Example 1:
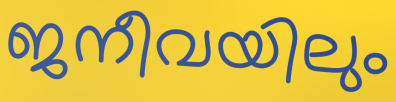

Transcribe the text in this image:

ജനീവയിലും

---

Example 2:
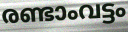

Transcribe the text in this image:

രണ്ടാംവട്ടം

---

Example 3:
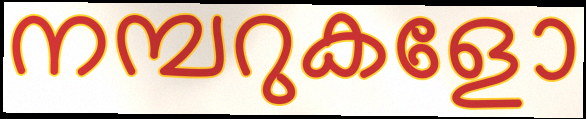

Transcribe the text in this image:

നമ്പറുകളോ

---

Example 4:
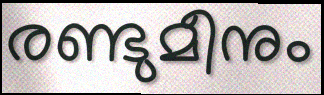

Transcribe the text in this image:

രണ്ടുമീനും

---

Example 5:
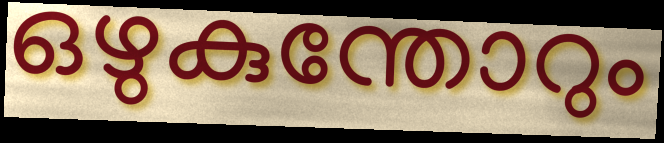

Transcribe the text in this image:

ഒഴുകുന്തോറും